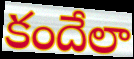
కందేలా